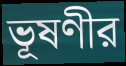
ভূষণীর